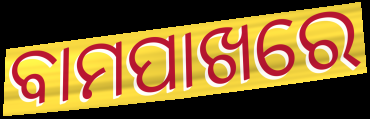
ବାମପାଖରେ